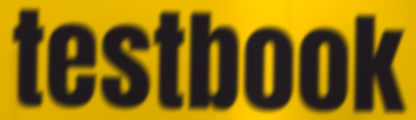
testbook